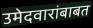
उमेदवारांबाबत